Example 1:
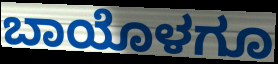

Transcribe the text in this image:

ಬಾಯೊಳಗೂ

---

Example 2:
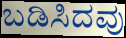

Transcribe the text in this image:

ಬಡಿಸಿದವು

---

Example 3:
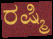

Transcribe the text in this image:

ರಷ್ಮಿ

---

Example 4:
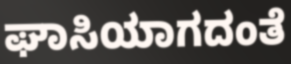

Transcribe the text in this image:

ಘಾಸಿಯಾಗದಂತೆ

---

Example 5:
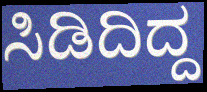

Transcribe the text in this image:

ಸಿಡಿದಿದ್ದ